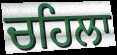
ਚਹਿਲਾ